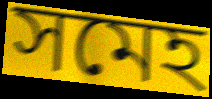
সমেহ